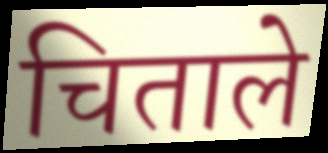
चिताले